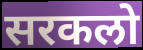
सरकलो